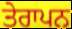
ਤੇਰਾਪਨ